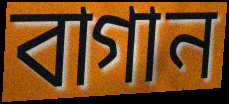
বাগান